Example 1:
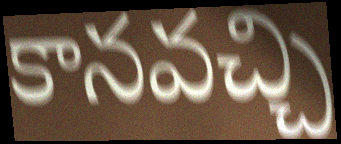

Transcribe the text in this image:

కానవచ్చి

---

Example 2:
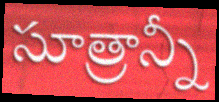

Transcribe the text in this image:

సూత్రాన్నీ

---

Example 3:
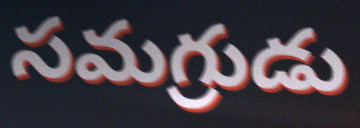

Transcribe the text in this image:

సమగ్రుడు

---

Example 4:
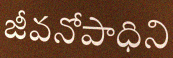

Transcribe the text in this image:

జీవనోపాధిని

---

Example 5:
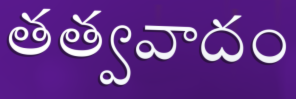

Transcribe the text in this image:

తత్వవాదం